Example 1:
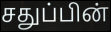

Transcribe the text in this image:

சதுப்பின்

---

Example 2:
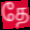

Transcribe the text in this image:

தே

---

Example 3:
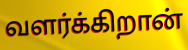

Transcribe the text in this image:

வளர்க்கிறான்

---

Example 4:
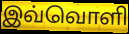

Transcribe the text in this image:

இவ்வொளி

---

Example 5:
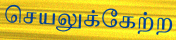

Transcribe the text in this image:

செயலுக்கேற்ற